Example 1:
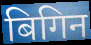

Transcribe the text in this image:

बिगिन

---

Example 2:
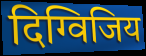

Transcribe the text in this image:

दिग्विजिय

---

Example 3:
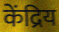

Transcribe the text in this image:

केंद्रिय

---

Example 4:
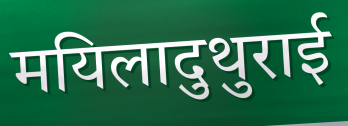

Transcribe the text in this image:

मयिलादुथुराई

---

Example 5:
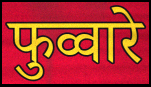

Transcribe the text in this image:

फुव्वारे